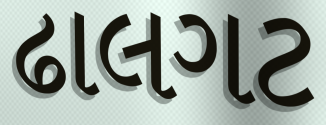
ઢાલગટ